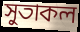
সুতাকল